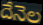
దేనెల